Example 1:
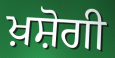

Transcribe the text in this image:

ਖ਼ਸ਼ੋਗੀ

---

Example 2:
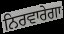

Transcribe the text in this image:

ਨਿਰਵਾਰੇਗਾ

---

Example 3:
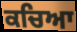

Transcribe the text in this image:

ਕਚਿਆ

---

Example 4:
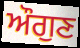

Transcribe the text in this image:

ਔਗੁਣ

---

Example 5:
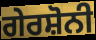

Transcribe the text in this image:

ਗੇਰਸ਼ੋਨੀ